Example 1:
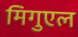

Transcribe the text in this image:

मिगुएल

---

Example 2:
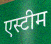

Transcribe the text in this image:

एस्टीम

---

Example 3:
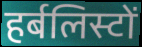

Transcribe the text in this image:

हर्बलिस्टों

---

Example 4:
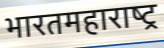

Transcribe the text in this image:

भारतमहाराष्ट्र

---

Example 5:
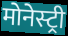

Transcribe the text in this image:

मोनेस्‍ट्री